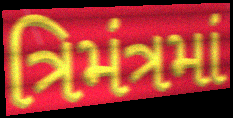
ત્રિમંત્રમાં